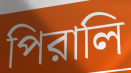
পিরালি